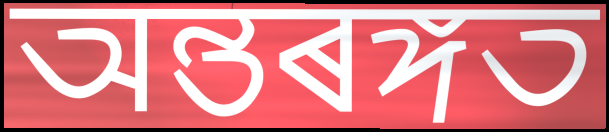
অন্তৰঙ্গত